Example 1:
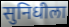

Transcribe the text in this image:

सुनिधीला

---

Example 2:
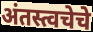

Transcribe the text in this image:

अंतस्त्वचेचे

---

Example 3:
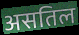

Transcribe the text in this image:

असतिल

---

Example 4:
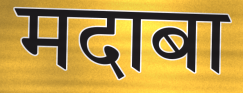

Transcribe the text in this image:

मदाबा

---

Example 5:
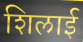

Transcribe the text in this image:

शिलाई